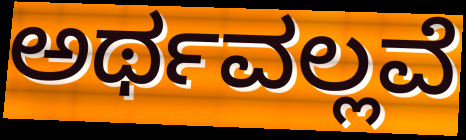
ಅರ್ಥವಲ್ಲವೆ